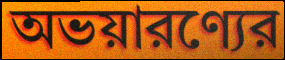
অভয়ারণ্যের